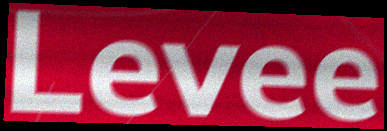
Levee